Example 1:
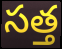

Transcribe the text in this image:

సత్త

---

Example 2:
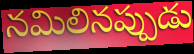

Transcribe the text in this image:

నమిలినప్పుడు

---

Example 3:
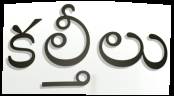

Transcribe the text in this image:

కల్తీలు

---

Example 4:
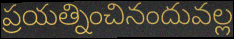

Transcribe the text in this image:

ప్రయత్నించినందువల్ల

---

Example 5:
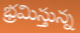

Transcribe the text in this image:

భ్రమిస్తున్న